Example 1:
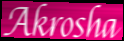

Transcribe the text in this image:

Akrosha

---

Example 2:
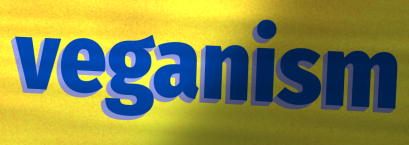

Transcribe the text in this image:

veganism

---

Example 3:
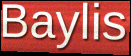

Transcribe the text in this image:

Baylis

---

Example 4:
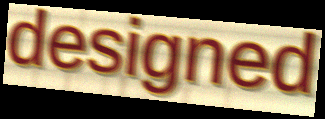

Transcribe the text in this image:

designed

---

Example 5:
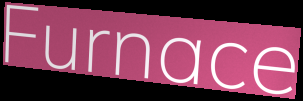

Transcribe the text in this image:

Furnace